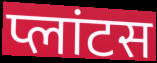
प्लांटस